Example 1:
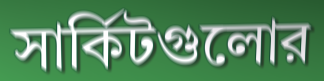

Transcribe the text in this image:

সার্কিটগুলোর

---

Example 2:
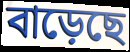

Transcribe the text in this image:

বাড়েছে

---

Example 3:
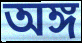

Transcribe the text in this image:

অঙ্গ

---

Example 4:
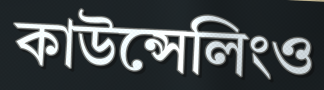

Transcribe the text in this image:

কাউন্সেলিংও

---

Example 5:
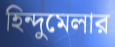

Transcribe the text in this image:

হিন্দুমেলার